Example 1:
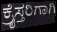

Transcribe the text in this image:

ಕ್ರೈಸ್ತರಿಗಾಗಿ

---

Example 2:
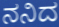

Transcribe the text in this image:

ನನಿದ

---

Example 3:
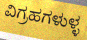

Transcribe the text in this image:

ವಿಗ್ರಹಗಳುಳ್ಳ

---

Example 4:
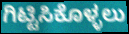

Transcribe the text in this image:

ಗಿಟ್ಟಿಸಿಕೊಳ್ಳಲು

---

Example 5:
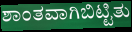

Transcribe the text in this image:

ಶಾಂತವಾಗಿಬಿಟ್ಟಿತು